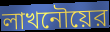
লাখনৌয়ের